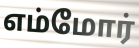
எம்மோர்